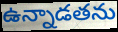
ఉన్నాడతను